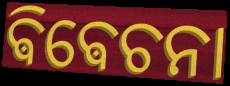
ଵିଵେଚନା